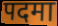
पदमा